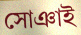
সোঞাই